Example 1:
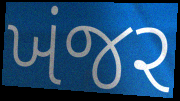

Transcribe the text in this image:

ખંજર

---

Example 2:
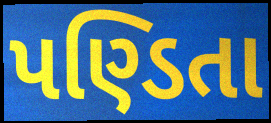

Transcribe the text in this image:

પણ્ડિતા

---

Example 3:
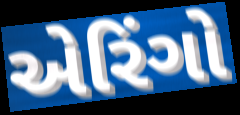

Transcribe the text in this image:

એરિંગો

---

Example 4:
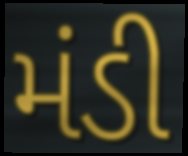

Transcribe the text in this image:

મંડી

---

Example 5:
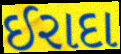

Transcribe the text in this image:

ઈરાદા